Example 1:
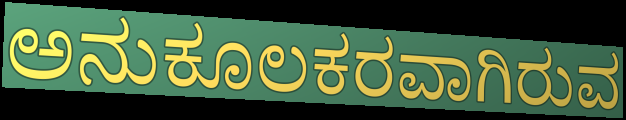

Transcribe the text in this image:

ಅನುಕೂಲಕರವಾಗಿರುವ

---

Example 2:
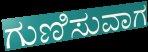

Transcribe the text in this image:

ಗುಣಿಸುವಾಗ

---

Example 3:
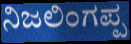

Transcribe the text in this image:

ನಿಜಲಿಂಗಪ್ಪ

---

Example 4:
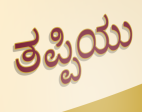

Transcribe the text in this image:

ತಪ್ಪಿಯು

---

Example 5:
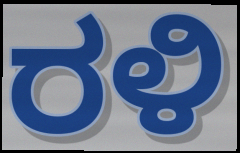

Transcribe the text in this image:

ರಳಿ